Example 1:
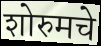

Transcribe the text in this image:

शोरुमचे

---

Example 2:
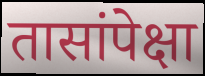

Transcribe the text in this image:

तासांपेक्षा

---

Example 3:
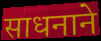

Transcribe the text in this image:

साधनाने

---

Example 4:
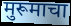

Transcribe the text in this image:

मुरूमाचा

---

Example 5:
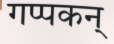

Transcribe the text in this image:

गप्पकन्